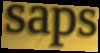
saps